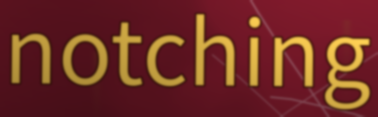
notching